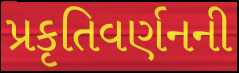
પ્રકૃતિવર્ણનની